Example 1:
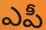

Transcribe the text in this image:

ఎపీ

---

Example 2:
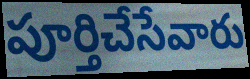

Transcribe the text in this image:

పూర్తిచేసేవారు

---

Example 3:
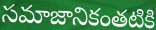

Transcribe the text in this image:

సమాజానికంతటికి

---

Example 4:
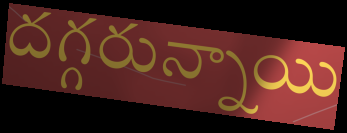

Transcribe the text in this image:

దగ్గరున్నాయి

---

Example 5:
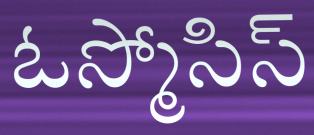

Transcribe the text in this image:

ఓస్మోసిస్